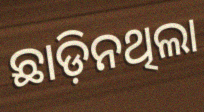
ଛାଡ଼ିନଥିଲା